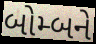
બોમ્બને